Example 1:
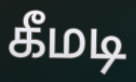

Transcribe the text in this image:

கீமடி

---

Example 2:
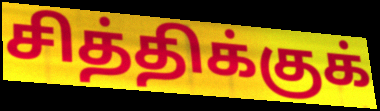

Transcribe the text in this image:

சித்திக்குக்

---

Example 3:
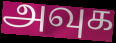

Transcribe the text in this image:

அவுக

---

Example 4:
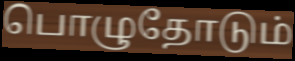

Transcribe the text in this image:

பொழுதோடும்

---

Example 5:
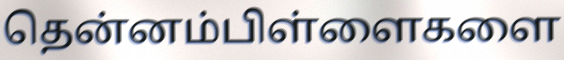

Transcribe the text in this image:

தென்னம்பிள்ளைகளை